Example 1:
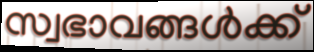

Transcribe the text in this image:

സ്വഭാവങ്ങൾക്ക്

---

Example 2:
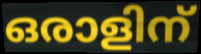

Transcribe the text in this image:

ഒരാളിന്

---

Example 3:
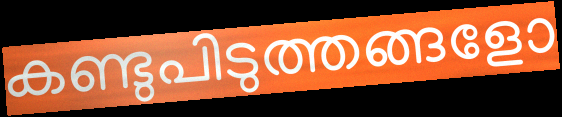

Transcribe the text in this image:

കണ്ടുപിടുത്തങ്ങളോ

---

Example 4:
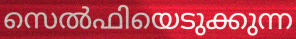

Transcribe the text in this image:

സെൽഫിയെടുക്കുന്ന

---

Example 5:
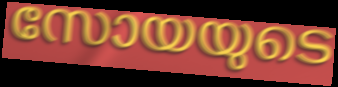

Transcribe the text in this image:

സോയയുടെ